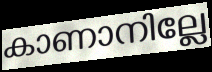
കാണാനില്ലേ